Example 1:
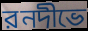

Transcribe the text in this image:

রনদীভে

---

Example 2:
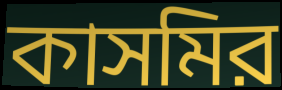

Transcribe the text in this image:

কাসমির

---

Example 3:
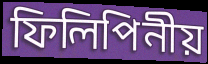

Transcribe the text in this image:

ফিলিপিনীয়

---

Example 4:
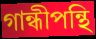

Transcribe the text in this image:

গান্ধীপন্থি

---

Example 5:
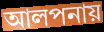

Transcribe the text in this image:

আলপনায়